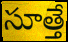
సూత్తే